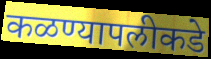
कळण्यापलीकडे